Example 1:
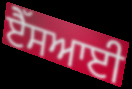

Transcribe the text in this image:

ਏੈੱਸਆਈ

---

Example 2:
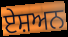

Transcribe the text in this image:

ਏਸ਼ਅਨ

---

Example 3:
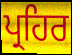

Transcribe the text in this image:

ਪ੍ਰਹਿਰ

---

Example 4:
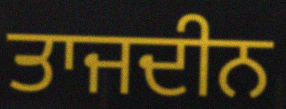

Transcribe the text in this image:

ਤਾਜਦੀਨ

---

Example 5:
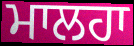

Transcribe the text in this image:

ਮਾਲਹਾ